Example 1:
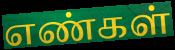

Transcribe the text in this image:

எண்கள்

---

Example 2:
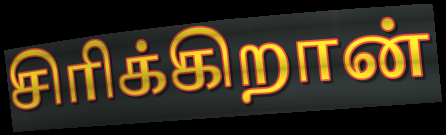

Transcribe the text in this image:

சிரிக்கிறான்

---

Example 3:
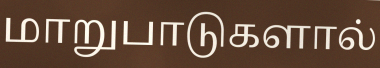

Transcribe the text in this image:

மாறுபாடுகளால்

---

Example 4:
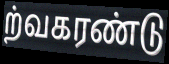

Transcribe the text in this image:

ற்வகரண்டு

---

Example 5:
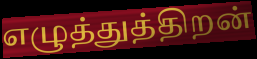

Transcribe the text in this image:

எழுத்துத்திறன்